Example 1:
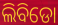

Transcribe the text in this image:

ଲିବିଡୋ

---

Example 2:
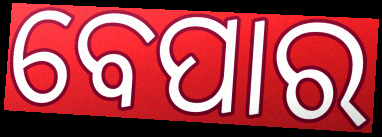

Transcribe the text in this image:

ବେପାର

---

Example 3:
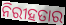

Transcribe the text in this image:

ନିରୀହତାର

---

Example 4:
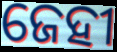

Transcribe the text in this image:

ଜେହୀ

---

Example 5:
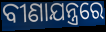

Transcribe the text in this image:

ବୀଣାଯନ୍ତ୍ରରେ